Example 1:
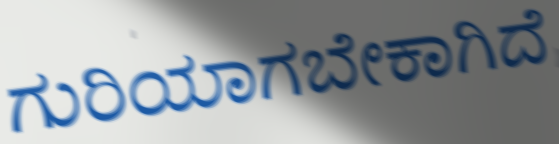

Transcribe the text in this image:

ಗುರಿಯಾಗಬೇಕಾಗಿದೆ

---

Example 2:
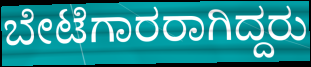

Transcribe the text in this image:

ಬೇಟೆಗಾರರಾಗಿದ್ದರು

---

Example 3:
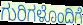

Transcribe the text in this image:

ಗುರಿಗಳೊಂದಿಗೆ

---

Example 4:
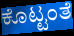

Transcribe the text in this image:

ಕೊಟ್ಟಂತೆ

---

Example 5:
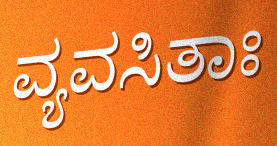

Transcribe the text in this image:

ವ್ಯವಸಿತಾಃ